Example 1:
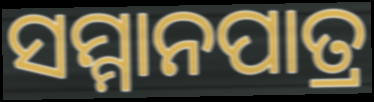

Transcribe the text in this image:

ସମ୍ମାନପାତ୍ର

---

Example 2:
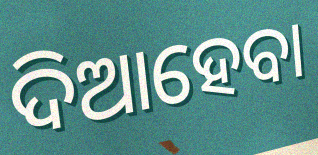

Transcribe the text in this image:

ଦିଆହେବା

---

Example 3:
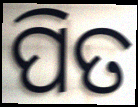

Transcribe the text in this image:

ପିତ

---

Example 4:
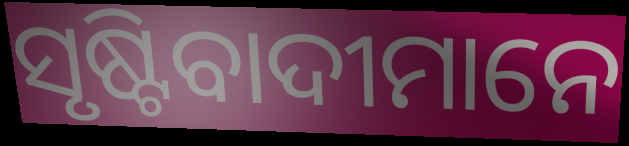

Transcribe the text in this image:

ସୃଷ୍ଟିବାଦୀମାନେ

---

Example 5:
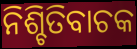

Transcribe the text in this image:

ନିଶ୍ଚିତିବାଚକ